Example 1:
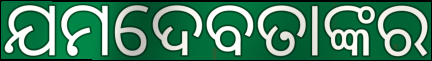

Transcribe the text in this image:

ଯମଦେବତାଙ୍କର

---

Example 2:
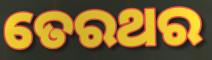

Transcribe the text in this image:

ତେରଥର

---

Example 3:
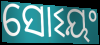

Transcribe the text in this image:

ସୋଽୟଂ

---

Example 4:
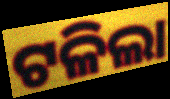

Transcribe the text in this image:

ଟଳିଲା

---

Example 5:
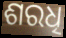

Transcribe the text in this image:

ଶରଧି